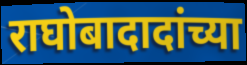
राघोबादादांच्या